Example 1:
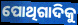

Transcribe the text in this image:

ପୋଥିଗାଦିକୁ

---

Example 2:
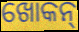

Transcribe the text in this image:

ଖୋକନ୍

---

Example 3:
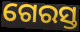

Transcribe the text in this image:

ଗେରସ୍ତ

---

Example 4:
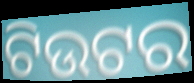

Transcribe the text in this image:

ଟିଉଟର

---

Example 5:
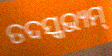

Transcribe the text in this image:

ତଦସ୍କଭ୍ୟମ୍